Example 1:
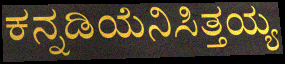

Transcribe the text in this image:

ಕನ್ನಡಿಯೆನಿಸಿತ್ತಯ್ಯ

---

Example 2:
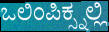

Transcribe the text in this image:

ಒಲಿಂಪಿಕ್ಸ್ನಲ್ಲಿ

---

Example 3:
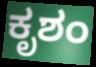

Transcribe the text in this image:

ಕೃಶಂ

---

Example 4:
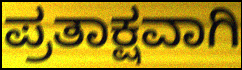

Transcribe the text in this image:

ಪ್ರತಾಕ್ಷವಾಗಿ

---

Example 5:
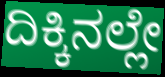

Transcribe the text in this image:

ದಿಕ್ಕಿನಲ್ಲೇ